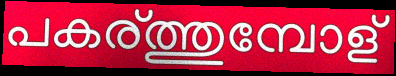
പകര്ത്തുമ്പോള്